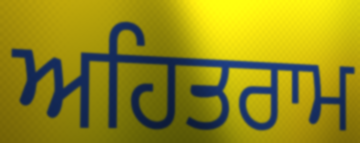
ਅਹਿਤਰਾਮ